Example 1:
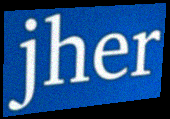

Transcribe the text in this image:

jher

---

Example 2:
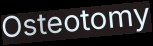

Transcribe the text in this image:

Osteotomy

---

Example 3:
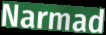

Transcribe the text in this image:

Narmad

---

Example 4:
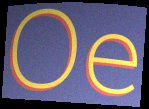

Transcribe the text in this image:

Oe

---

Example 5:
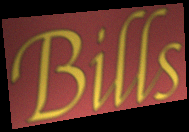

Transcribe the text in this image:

Bills